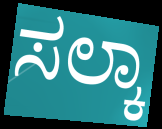
ಸಲ್ಕಾ